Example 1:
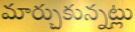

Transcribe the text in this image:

మార్చుకున్నట్లు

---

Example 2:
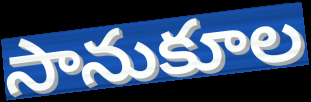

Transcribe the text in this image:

సానుకూల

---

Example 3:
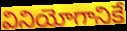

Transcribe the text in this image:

వినియోగానికే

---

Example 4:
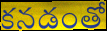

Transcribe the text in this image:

కనడంతో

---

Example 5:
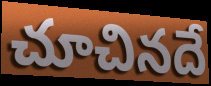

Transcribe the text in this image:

చూచినదే